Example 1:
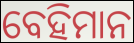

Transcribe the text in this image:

ବେହିମାନ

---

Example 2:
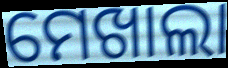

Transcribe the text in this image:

ମେଖାଲା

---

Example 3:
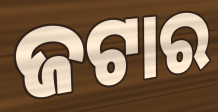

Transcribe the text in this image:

ଜଟାର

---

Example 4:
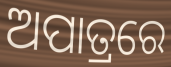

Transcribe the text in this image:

ଅପାତ୍ରରେ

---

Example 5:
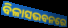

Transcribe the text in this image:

ବିଳାସଭବନରେ